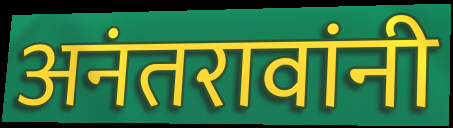
अनंतरावांनी